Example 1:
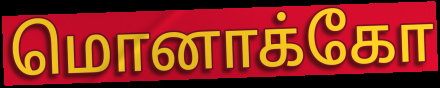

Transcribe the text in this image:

மொனாக்கோ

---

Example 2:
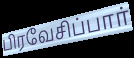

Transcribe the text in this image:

பிரவேசிப்பார்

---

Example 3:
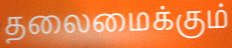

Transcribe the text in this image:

தலைமைக்கும்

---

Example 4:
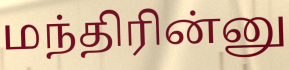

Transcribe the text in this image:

மந்திரின்னு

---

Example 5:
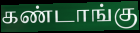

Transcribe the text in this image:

கண்டாங்கு